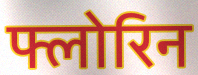
फ्लोरिन